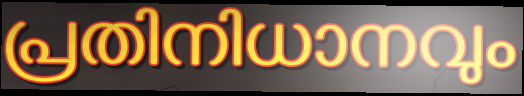
പ്രതിനിധാനവും